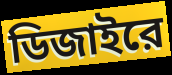
ডিজাইরে